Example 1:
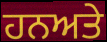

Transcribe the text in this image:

ਹਨਅਤੇ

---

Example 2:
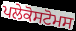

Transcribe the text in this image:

ਪਲੇਕੋਸਟੋਮਸ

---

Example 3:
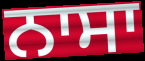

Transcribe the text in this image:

ਨਾਸਾ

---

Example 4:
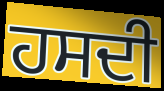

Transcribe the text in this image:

ਹਸਦੀ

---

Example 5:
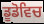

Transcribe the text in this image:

ਡੂਡੋਵਿਚ